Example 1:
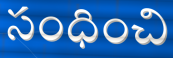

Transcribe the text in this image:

సంధించి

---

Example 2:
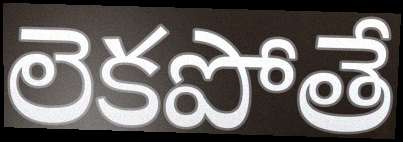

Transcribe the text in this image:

లెకపోతే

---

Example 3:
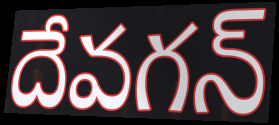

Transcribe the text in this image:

దేవగన్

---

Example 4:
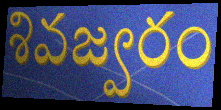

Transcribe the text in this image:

శివజ్వరం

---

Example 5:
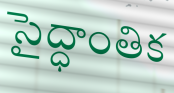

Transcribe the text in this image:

సైద్ధాంతిక